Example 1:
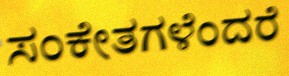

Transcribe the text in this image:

ಸಂಕೇತಗಳೆಂದರೆ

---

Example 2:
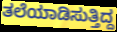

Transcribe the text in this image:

ತಲೆಯಾಡಿಸುತ್ತಿದ್ದ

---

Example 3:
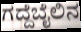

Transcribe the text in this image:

ಗದ್ದೆಬೈಲಿನ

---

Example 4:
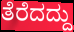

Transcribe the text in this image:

ತೆರೆದದ್ದು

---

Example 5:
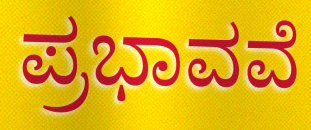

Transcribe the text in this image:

ಪ್ರಭಾವವೆ